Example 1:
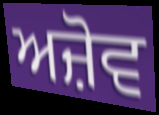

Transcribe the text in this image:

ਅਜ਼ੋਵ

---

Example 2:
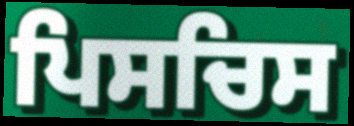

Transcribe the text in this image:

ਪਿਸਚਿਸ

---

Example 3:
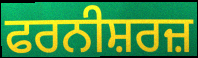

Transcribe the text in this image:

ਫਰਨੀਸ਼ਰਜ਼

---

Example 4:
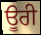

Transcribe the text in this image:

ਊਰੀ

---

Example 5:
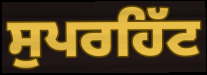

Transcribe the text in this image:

ਸੁਪਰਹਿੱਟ